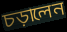
চড়ালেন